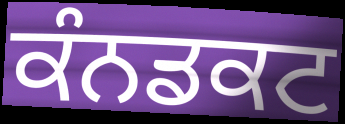
ਕੰਨਡਕਟ